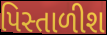
પિસ્તાળીશ